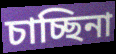
চাচ্ছিনা